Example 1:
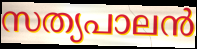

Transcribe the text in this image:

സത്യപാലൻ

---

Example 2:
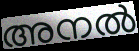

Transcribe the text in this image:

അനൽ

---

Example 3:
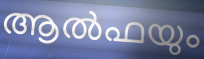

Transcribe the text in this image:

ആൽഫയും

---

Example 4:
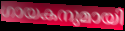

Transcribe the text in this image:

ഗായകനുമായി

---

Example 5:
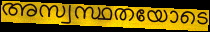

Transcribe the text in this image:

അസ്വസ്ഥതയോടെ